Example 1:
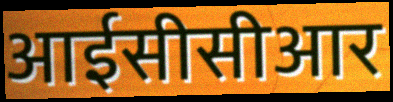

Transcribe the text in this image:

आईसीसीआर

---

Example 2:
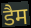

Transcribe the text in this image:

डैम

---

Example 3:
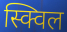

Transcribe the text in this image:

स्क्विल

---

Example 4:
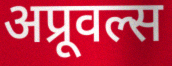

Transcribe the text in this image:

अप्रूवल्स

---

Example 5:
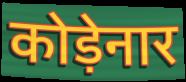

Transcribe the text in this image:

कोड़ेनार